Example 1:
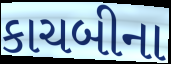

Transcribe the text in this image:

કાચબીના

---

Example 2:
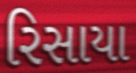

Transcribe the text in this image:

રિસાયા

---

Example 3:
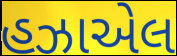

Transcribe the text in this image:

હઝાએલ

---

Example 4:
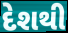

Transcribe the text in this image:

દેશથી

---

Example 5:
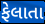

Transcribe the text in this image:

ફેલાતા